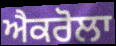
ਐਕਰੋਲਾ